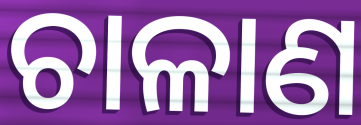
ଚାଳାଣ